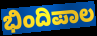
ಭಿಂದಿಪಾಲ